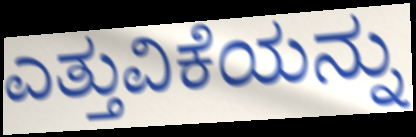
ಎತ್ತುವಿಕೆಯನ್ನು